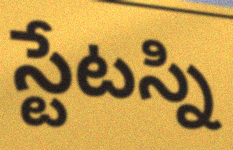
స్టేటస్ని